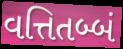
વત્તિતબ્બં